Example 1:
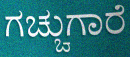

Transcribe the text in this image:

ಗಚ್ಚುಗಾರೆ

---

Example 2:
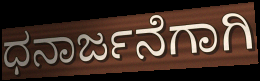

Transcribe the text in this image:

ಧನಾರ್ಜನೆಗಾಗಿ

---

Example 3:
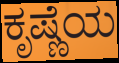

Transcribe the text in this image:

ಕೃಷ್ಣೆಯ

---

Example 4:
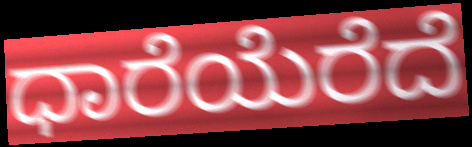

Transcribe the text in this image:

ಧಾರೆಯೆರೆದೆ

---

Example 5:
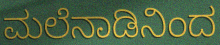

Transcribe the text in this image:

ಮಲೆನಾಡಿನಿಂದ